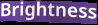
Brightness